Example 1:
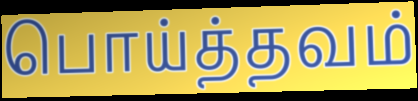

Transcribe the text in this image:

பொய்த்தவம்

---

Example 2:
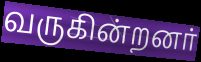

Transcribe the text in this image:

வருகின்றனர்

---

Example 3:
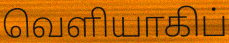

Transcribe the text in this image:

வெளியாகிப்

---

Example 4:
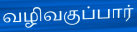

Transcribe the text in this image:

வழிவகுப்பார்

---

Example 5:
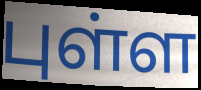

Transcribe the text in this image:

புள்ள